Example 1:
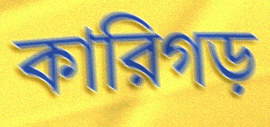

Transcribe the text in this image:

কারিগড়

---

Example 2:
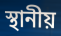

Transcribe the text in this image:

স্থানীয়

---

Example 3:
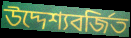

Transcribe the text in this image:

উদ্দেশ্যবর্জিত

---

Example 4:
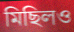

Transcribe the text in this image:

মিছিলও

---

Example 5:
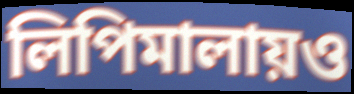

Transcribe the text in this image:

লিপিমালায়ও